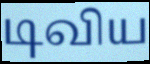
டிவிய